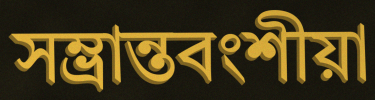
সম্ভ্রান্তবংশীয়া